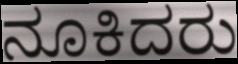
ನೂಕಿದರು